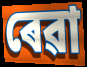
ৰেৱা